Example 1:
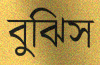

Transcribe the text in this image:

বুঝিস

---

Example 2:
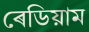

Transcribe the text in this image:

ৰেডিয়াম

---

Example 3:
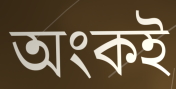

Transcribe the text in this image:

অংকই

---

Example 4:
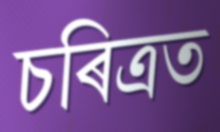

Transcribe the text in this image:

চৰিত্ৰত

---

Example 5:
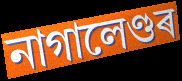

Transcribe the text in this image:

নাগালেণ্ডৰ